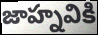
జాహ్నవికి